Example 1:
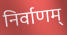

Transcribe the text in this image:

निर्वाणम्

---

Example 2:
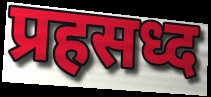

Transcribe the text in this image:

प्रहसध्द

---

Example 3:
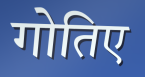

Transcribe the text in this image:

गोतिए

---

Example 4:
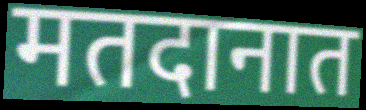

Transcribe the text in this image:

मतदानात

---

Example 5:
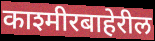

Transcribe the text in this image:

काश्मीरबाहेरील